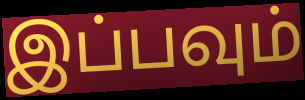
இப்பவும்